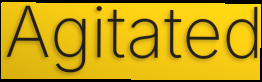
Agitated